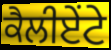
ਕੈਲੀਏਂਟੇ